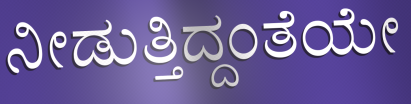
ನೀಡುತ್ತಿದ್ದಂತೆಯೇ